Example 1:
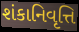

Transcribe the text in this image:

શંકાનિવૃત્તિ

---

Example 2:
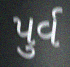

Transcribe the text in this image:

પુર્વ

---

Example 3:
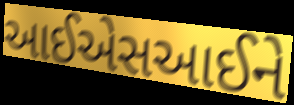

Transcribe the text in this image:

આઈએસઆઈને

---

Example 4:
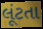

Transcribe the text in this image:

લૂંટતા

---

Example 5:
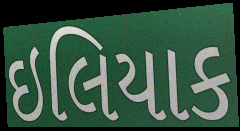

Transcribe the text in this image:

ઇલિયાક